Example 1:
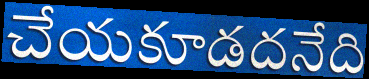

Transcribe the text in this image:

చేయకూడదనేది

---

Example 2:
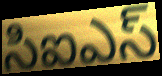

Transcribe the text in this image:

సిఐఎస్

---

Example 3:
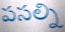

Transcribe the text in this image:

పసల్ని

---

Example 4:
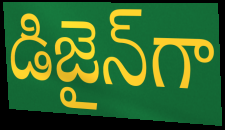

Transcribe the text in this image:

డిజైన్‌గా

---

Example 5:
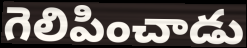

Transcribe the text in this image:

గెలిపించాడు